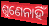
ଶୁଣେନାହିଁ